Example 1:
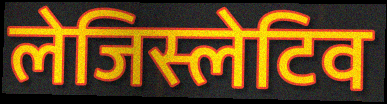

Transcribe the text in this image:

लेजिस्लेटिव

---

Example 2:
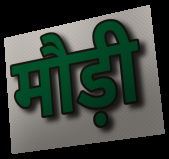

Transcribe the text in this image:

मौड़ी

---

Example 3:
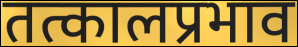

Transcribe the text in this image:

तत्कालप्रभाव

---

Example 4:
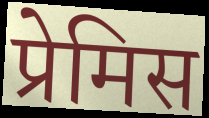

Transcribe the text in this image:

प्रेमिस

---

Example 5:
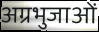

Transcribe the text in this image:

अग्रभुजाओं